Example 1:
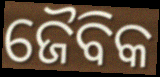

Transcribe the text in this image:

ଜୈବିକ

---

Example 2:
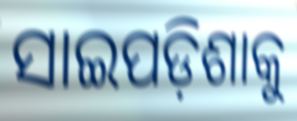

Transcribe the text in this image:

ସାଇପଡ଼ିଶାକୁ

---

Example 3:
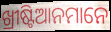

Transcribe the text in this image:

ଖ୍ରୀଷ୍ଟିଆନମାନେ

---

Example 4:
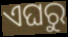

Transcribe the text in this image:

ଏଘରୁ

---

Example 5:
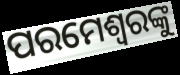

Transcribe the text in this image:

ପରମେଶ୍ୱରଙ୍କୁ